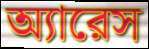
অ্যারেস